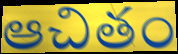
ఆచితం